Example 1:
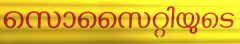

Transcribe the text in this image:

സൊസൈറ്റിയുടെ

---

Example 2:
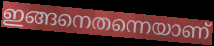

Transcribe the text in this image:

ഇങ്ങനെതന്നെയാണ്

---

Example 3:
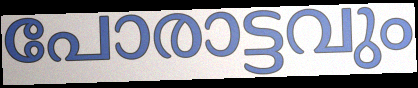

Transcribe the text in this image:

പോരാട്ടവും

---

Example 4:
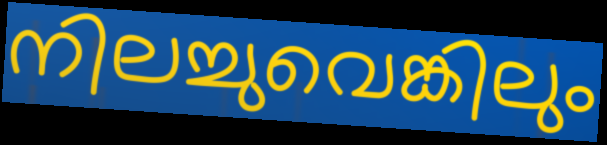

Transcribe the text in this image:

നിലച്ചുവെങ്കിലും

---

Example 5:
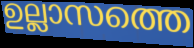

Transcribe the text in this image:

ഉല്ലാസത്തെ